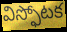
విస్ఫోటక